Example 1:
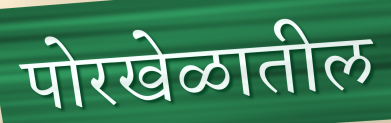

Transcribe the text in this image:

पोरखेळातील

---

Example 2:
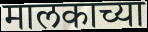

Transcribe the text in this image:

मालकाच्या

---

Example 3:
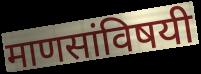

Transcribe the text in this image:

माणसांविषयी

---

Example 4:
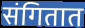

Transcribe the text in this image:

संगितात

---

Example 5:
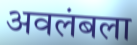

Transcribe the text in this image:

अवलंबला